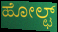
ಹೋಲ್ಟ್